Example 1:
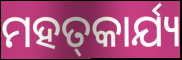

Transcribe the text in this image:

ମହତ୍‌କାର୍ଯ୍ୟ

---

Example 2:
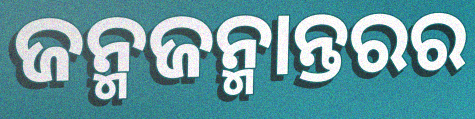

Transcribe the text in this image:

ଜନ୍ମଜନ୍ମାନ୍ତରର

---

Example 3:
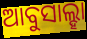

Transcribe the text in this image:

ଆବୁସାଲ୍ହା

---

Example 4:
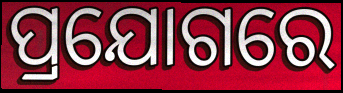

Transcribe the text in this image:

ପ୍ରଯୋଗରେ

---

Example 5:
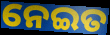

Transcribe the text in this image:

ନେଇତ